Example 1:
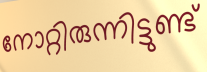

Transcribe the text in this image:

നോറ്റിരുന്നിട്ടുണ്ട്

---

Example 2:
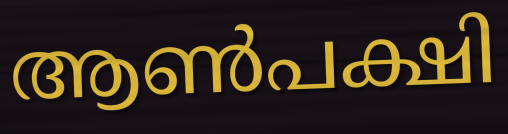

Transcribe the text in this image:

ആൺപക്ഷി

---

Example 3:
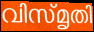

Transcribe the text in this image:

വിസ്മൃതി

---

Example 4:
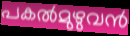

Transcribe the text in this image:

പകൽമുഴുവൻ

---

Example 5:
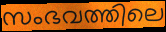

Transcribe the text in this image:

സംഭവത്തിലെ